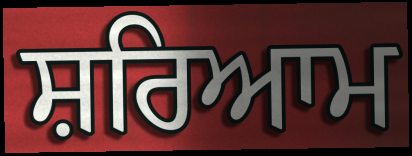
ਸ਼ਰਿਆਮ